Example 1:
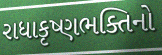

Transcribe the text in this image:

રાધાકૃષ્ણભક્તિનો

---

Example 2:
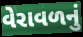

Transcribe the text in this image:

વેરાવળનું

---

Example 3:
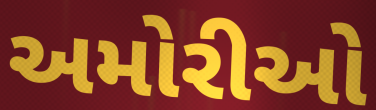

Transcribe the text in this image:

અમોરીઓ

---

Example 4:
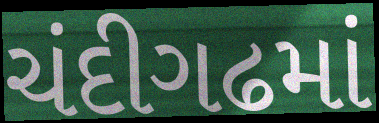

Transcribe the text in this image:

ચંદીગઢમાં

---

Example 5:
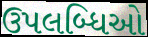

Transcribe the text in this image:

ઉપલબ્ધિઓ